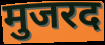
मुजरद